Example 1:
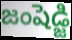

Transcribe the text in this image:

జంషెడ్జి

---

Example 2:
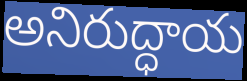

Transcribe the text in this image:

అనిరుద్ధాయ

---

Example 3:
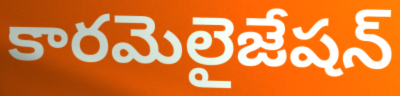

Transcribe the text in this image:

కారమెలైజేషన్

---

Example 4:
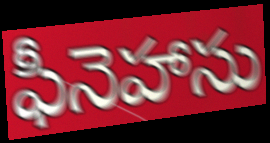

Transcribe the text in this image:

ఫీనెహాసు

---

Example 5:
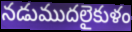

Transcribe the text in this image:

నడుముదలైకుళం